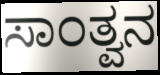
ಸಾಂತ್ವನ